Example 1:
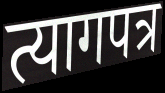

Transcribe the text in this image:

त्यागपत्र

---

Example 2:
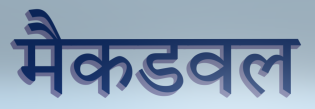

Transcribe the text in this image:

मैकडवल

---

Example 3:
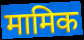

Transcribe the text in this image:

मामिक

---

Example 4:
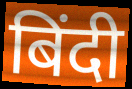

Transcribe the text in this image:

बिंदी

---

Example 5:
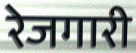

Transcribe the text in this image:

रेजगारी